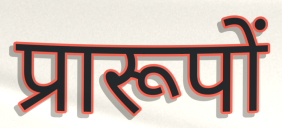
प्रारूपों